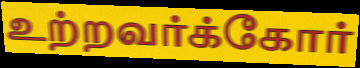
உற்றவர்க்கோர்